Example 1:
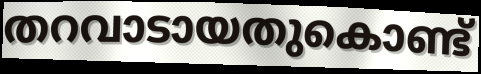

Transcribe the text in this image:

തറവാടായതുകൊണ്ട്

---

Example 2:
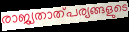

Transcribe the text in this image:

രാജ്യതാത്പര്യങ്ങളുടെ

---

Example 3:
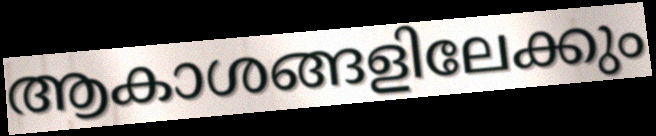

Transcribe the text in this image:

ആകാശങ്ങളിലേക്കും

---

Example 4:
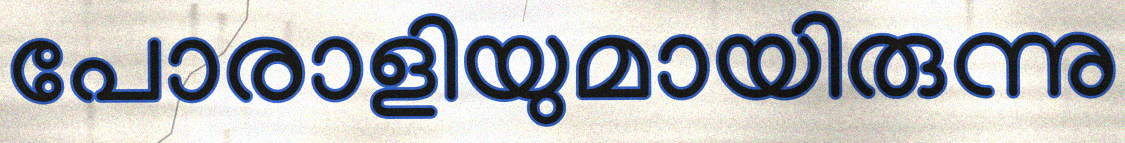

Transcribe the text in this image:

പോരാളിയുമായിരുന്നു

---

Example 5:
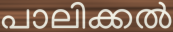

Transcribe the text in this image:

പാലിക്കൽ